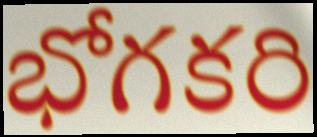
భోగకరి